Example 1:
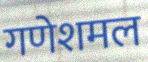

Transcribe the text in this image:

गणेशमल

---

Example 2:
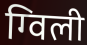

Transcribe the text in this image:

ग्विली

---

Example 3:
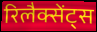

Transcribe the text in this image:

रिलैक्सेंट्स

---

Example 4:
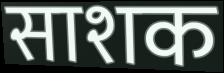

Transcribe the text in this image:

साशक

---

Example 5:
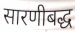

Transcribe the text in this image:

सारणीबद्ध